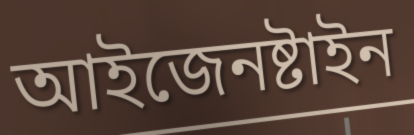
আইজেনষ্টাইন